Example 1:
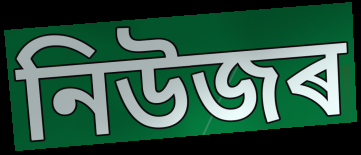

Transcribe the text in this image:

নিউজৰ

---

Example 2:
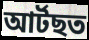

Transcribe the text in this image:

আৰ্টছত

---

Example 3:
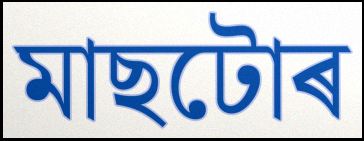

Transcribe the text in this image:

মাছটোৰ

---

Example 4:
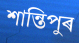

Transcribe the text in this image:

শান্তিপুৰ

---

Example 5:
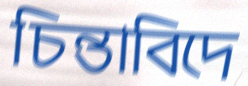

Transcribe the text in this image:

চিন্তাবিদে